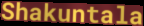
Shakuntala